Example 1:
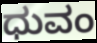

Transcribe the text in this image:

ಧುವಂ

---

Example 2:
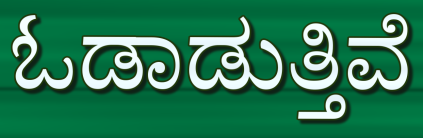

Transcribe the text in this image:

ಓಡಾಡುತ್ತಿವೆ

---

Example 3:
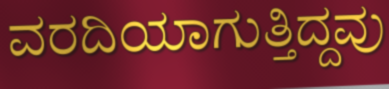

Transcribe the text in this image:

ವರದಿಯಾಗುತ್ತಿದ್ದವು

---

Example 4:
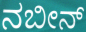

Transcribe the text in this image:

ನಬೀನ್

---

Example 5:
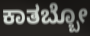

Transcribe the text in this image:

ಕಾತಬ್ಬೋ